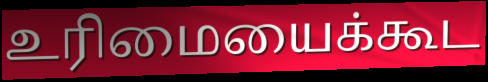
உரிமையைக்கூட